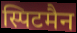
स्पिटमैन